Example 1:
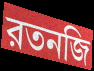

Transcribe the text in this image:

রতনজি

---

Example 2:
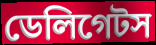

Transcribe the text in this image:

ডেলিগেটস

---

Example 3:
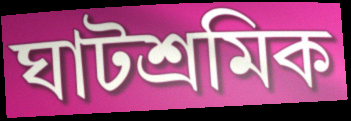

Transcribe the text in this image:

ঘাটশ্রমিক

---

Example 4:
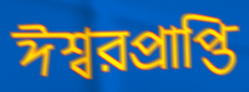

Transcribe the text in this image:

ঈশ্বরপ্রাপ্তি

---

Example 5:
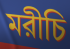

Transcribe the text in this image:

মরীচি